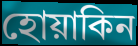
হোয়াকিন